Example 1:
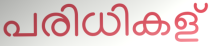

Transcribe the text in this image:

പരിധികള്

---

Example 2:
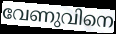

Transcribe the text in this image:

വേണുവിനെ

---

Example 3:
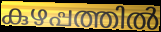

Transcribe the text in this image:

കുഴപ്പത്തിൽ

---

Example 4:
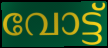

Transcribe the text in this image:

വോട്ട്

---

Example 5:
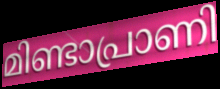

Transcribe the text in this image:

മിണ്ടാപ്രാണി